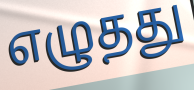
எழுதது